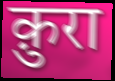
क़ुरा